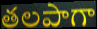
తలపాగా